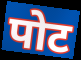
पोट